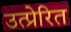
उत्‍प्रेरित